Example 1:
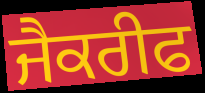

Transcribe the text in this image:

ਜੈਕਰੀਫ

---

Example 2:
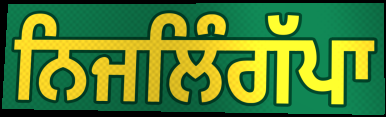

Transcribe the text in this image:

ਨਿਜਲਿੰਗੱਪਾ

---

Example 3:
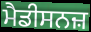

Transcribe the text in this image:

ਮੈਡੀਸਨਜ਼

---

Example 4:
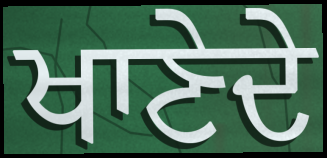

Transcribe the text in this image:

ਖਾਣੇਦੇ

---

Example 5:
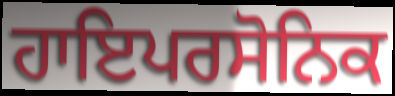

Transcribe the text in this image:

ਹਾਇਪਰਸੋਨਿਕ